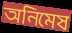
অনিমেষ